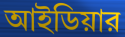
আইডিয়ার